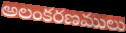
అలంకరణములు